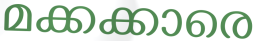
മക്കക്കാരെ